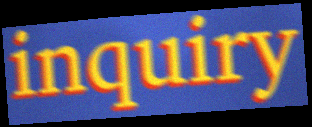
inquiry